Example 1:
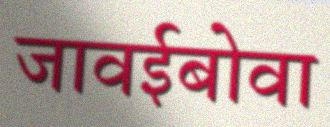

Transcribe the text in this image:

जावईबोवा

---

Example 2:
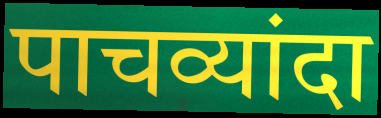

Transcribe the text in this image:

पाचव्यांदा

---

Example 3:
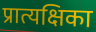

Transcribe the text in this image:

प्रात्यक्षिका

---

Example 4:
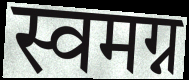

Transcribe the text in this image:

स्वमग्न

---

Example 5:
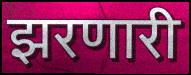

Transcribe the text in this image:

झरणारी